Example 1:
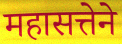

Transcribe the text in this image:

महासत्तेने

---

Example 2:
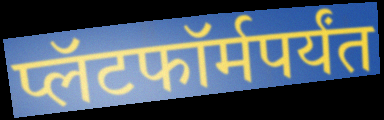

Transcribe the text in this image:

प्लॅटफॉर्मपर्यंत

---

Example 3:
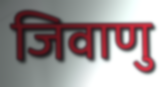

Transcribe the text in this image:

जिवाणु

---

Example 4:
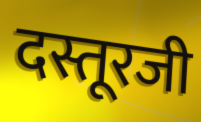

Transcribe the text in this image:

दस्तूरजी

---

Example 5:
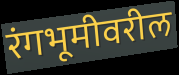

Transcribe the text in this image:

रंगभूमीवरील